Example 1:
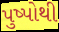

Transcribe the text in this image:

પુષ્પોથી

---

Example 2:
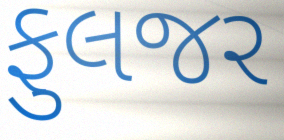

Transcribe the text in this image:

ફુલજર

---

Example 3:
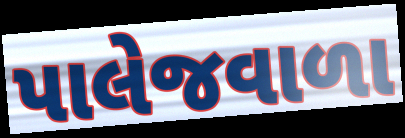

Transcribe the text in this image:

પાલેજવાળા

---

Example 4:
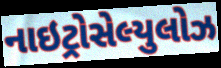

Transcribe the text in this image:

નાઇટ્રોસેલ્યુલોઝ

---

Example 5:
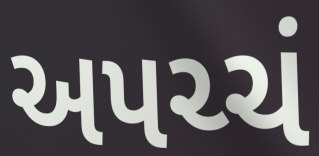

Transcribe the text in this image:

અપચ્ચં